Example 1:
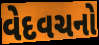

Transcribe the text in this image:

વેદવચનો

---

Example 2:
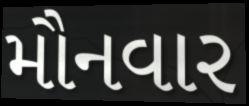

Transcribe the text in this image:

મૌનવાર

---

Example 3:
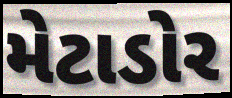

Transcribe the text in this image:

મેટાડોર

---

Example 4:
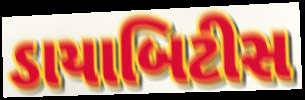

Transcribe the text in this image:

ડાયાબિટીસ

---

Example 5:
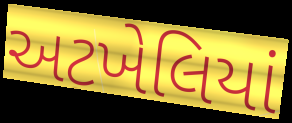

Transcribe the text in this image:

અટખેલિયાં